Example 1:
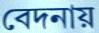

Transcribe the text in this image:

বেদনায়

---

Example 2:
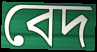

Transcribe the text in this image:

বেদ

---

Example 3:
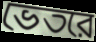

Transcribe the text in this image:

ভেতরে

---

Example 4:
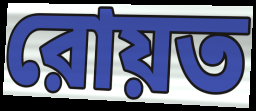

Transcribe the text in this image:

রোয়ত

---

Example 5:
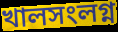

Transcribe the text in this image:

খালসংলগ্ন